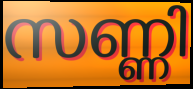
സണ്ണി